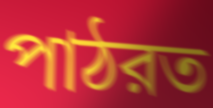
পাঠরত